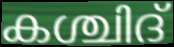
കശ്ചിദ്